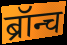
ब्रॉन्च